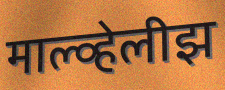
माल्व्हेलीझ